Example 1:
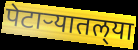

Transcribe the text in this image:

पेटाऱ्यातल्या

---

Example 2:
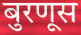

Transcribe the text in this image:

बुरणूस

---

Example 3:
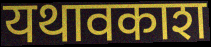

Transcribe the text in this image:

यथावकाश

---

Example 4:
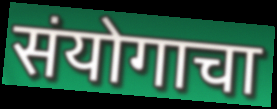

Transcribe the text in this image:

संयोगाचा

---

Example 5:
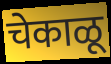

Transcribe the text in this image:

चेकाळू